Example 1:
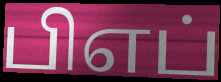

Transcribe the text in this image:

பிஎப்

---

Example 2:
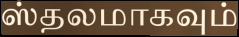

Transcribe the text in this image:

ஸ்தலமாகவும்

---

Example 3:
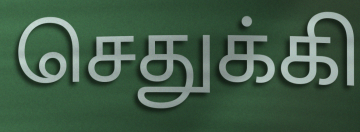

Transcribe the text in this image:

செதுக்கி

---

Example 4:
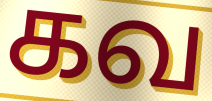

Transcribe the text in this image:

கவ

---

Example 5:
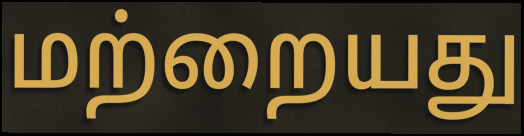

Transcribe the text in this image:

மற்றையது